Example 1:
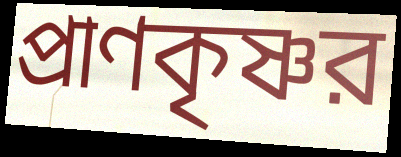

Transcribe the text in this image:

প্রাণকৃষ্ণর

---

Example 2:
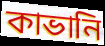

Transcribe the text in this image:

কাভানি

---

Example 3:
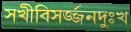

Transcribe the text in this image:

সখীবিসর্জ্জনদুঃখ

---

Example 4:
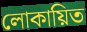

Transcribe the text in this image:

লোকায়িত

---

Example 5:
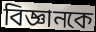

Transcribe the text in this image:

বিজ্ঞানকে